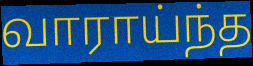
வாராய்ந்த